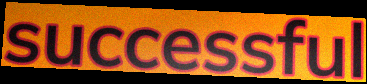
successful